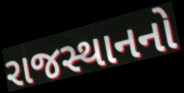
રાજસ્થાનનો